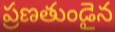
ప్రణతుండైన